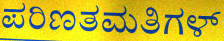
ಪರಿಣತಮತಿಗಳ್